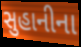
સુહાનીના